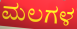
ಮಲಗಳ